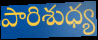
పారిశుధ్య